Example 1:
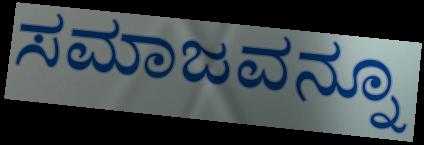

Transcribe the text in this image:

ಸಮಾಜವನ್ನೂ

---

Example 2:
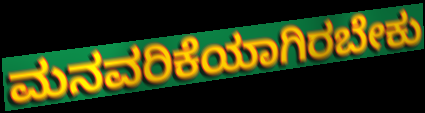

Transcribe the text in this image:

ಮನವರಿಕೆಯಾಗಿರಬೇಕು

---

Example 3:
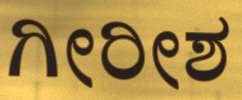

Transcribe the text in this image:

ಗೀರೀಶ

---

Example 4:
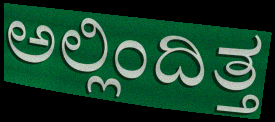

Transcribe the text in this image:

ಅಲ್ಲಿಂದಿತ್ತ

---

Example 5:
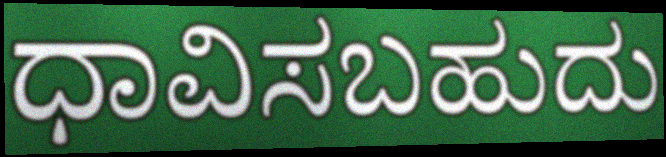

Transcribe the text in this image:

ಧಾವಿಸಬಹುದು